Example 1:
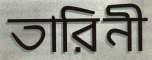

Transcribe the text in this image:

তারিনী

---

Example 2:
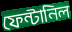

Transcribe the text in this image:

ফেন্টানিল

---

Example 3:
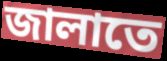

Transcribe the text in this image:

জালাতে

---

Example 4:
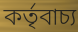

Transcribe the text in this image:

কর্তৃবাচ্য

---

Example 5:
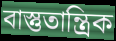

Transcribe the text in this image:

বাস্তুতান্ত্রিক